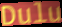
Dulu